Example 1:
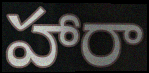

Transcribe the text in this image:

హారా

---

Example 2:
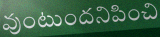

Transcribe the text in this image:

వుంటుందనిపించి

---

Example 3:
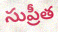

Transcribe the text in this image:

సుప్రీత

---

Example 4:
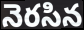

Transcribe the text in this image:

నెరసిన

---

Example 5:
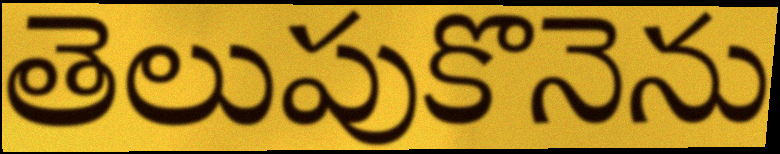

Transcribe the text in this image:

తెలుపుకొనెను